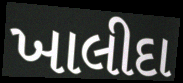
ખાલીદા